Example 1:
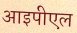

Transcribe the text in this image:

आइपीएल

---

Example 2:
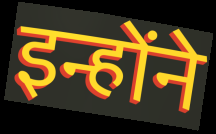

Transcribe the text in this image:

इन्होंने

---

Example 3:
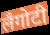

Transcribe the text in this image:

लँगोटी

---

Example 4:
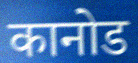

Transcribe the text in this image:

कानोड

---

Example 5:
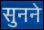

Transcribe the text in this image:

सुनने